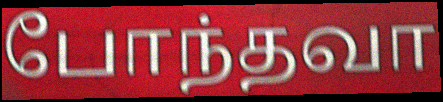
போந்தவா